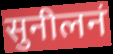
सुनीलनं